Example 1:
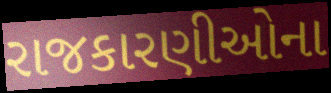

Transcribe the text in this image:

રાજકારણીઓના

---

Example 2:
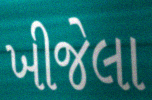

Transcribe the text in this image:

ખીજેલા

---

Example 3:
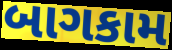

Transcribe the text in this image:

બાગકામ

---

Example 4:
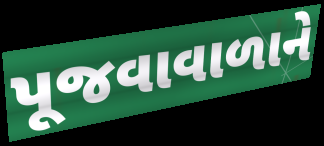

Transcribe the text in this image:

પૂજવાવાળાને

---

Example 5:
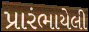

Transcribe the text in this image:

પ્રારંભાયેલી